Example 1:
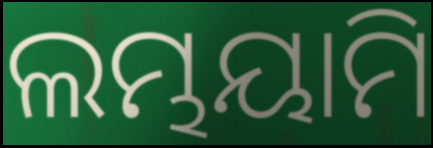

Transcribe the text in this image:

ଲମ୍ଭୟାମି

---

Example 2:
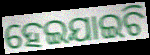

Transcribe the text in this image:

ହେଇଯାଇଚି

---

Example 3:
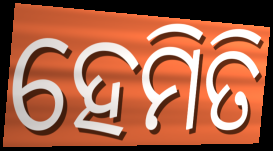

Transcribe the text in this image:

ହେମିତି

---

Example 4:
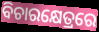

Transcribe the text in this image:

ବିଚାରକ୍ଷେତ୍ରରେ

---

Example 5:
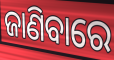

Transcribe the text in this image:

ଜାଣିବାରେ